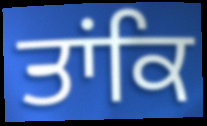
ਤਾਂਕਿ